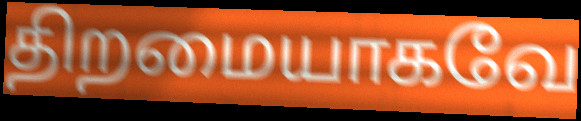
திறமையாகவே